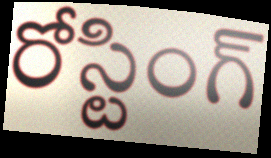
రోస్టింగ్